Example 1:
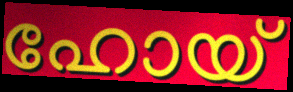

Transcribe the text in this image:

ഹോയ്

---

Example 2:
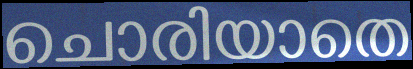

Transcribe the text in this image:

ചൊരിയാതെ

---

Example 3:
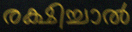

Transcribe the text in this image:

രക്ഷിച്ചാൽ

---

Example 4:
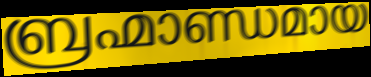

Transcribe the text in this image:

ബ്രഹ്മാണ്ഡമായ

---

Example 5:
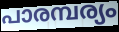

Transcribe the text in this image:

പാരമ്പര്യം